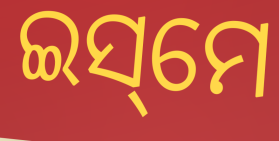
ଇସ୍‌ମେ